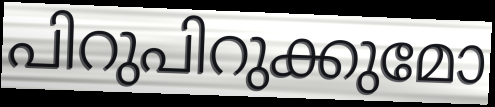
പിറുപിറുക്കുമോ